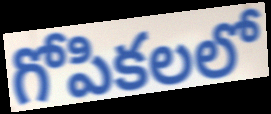
గోపికలలో